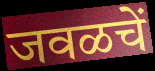
जवळचें